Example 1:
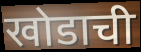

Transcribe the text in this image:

खोडाची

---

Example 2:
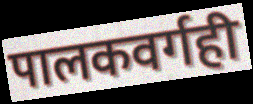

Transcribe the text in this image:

पालकवर्गही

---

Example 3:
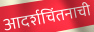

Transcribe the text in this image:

आदर्शचिंतनाची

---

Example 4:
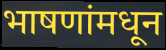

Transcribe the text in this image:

भाषणांमधून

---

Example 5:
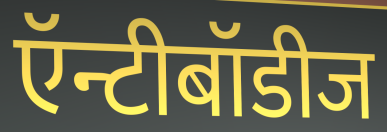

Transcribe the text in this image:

ऍन्टीबॉडीज